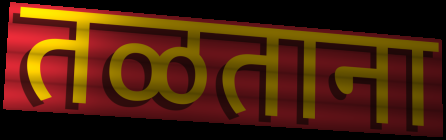
तळताना